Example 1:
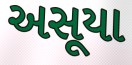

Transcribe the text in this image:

અસૂયા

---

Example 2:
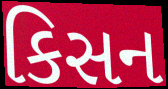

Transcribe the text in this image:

કિસન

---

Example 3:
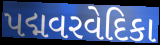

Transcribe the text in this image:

પદ્મવરવેદિકા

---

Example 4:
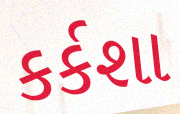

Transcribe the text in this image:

કર્કશા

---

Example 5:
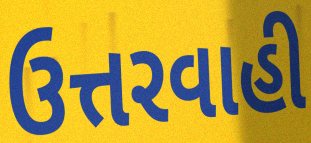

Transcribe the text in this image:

ઉત્તરવાહી